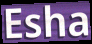
Esha